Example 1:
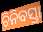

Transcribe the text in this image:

ଚିନିବସ୍ତା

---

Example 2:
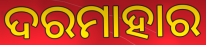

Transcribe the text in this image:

ଦରମାହାର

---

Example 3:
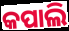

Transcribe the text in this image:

କପାଲି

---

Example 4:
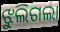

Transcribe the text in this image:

ଝୁଲିଗଲା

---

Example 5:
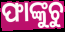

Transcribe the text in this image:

ଫାଙ୍କୁଚୁ